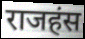
राजहंस